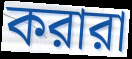
করারা